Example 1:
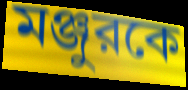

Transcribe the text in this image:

মঞ্জুরকে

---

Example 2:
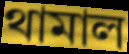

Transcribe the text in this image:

থামাল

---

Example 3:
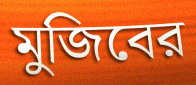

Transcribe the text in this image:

মুজিবের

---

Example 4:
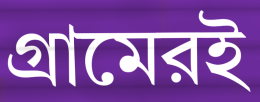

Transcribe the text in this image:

গ্রামেরই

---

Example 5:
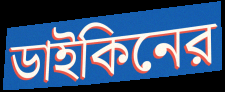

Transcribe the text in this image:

ডাইকিনের